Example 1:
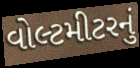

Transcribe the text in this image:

વોલ્ટમીટરનું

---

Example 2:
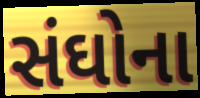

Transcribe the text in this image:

સંઘોના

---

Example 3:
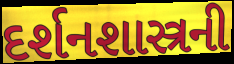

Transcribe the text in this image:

દર્શનશાસ્ત્રની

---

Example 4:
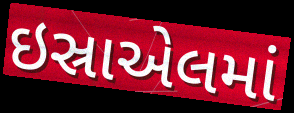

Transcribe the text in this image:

ઇસ્રાએલમાં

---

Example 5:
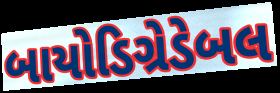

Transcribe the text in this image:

બાયોડિગ્રેડેબલ